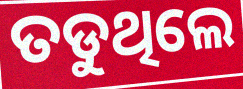
ତଡୁଥିଲେ